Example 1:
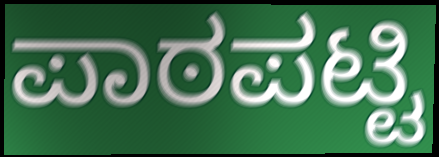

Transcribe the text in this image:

ಪಾಠಪಟ್ಟಿ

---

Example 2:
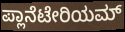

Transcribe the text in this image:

ಪ್ಲಾನೆಟೇರಿಯಮ್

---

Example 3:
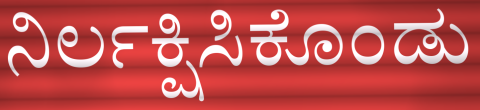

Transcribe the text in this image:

ನಿರ್ಲಕ್ಷಿಸಿಕೊಂಡು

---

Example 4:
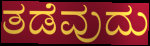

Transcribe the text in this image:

ತಡೆವುದು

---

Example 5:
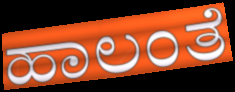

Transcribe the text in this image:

ಹಾಲಂತೆ